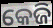
କେଜି